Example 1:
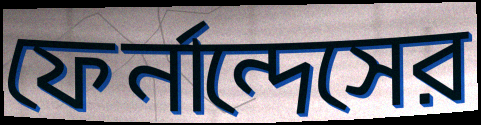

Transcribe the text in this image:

ফের্নান্দেসের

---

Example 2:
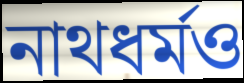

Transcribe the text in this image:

নাথধর্মও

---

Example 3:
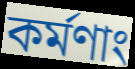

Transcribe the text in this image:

কর্মণাং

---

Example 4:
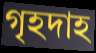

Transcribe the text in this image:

গৃহদাহ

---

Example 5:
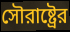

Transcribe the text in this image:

সৌরাষ্ট্রের